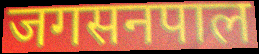
जगसनपाल